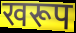
खरूप